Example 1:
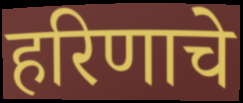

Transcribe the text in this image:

हरिणाचे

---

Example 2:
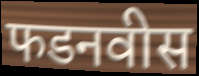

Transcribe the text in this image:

फडनवीस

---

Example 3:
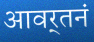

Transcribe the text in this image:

आवर्तनं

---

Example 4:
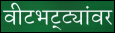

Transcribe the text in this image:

वीटभट्ट्यांवर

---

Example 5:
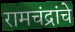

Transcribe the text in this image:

रामचंद्रांचे